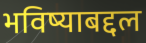
भविष्याबद्दल